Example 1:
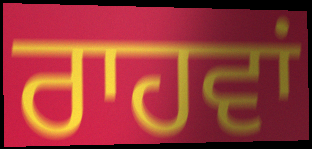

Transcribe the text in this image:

ਰਾਹਵਾਂ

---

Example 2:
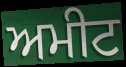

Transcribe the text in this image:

ਅਮੀਟ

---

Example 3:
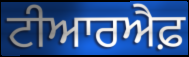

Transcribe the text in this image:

ਟੀਆਰਐਫ਼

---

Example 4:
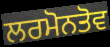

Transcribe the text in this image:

ਲਰਮੋਨਤੋਵ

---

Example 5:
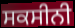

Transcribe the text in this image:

ਸਕਸੀਨੀ